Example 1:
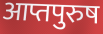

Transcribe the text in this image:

आप्तपुरुष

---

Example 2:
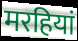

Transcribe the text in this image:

मरहियां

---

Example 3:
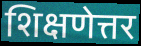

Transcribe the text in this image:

शिक्षणेत्तर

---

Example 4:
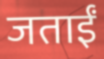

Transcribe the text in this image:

जताईं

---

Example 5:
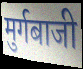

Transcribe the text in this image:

मुर्गबाजी